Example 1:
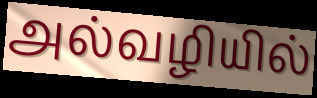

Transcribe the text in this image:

அல்வழியில்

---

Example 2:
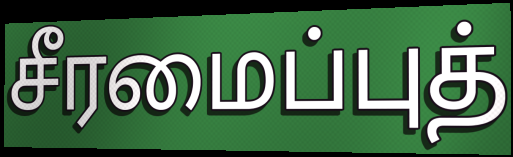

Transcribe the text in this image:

சீரமைப்புத்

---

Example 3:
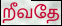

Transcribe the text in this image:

றீவதே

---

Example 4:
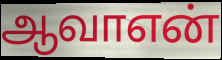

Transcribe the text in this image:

ஆவாஎன்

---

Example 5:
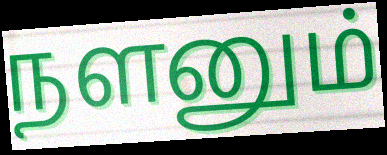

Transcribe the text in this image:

நளனும்